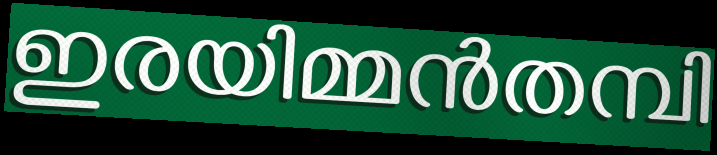
ഇരയിമ്മൻതമ്പി